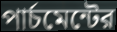
পার্চমেন্টের